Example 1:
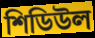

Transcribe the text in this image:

শিডিউল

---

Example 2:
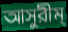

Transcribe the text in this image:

আসুরীম্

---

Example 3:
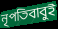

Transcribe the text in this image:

নৃপতিবাবুই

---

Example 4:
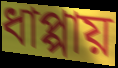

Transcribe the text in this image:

ধাপ্পায়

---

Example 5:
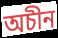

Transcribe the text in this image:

অচীন